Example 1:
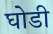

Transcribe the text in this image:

घोडी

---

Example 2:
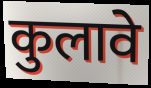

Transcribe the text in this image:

कुलावे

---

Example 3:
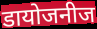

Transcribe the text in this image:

डायोजनीज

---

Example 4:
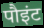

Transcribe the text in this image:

पौइंट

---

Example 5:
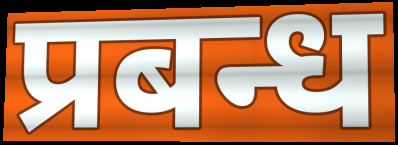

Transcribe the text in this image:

प्रबन्ध